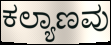
ಕಲ್ಯಾಣವು